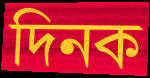
দিনক